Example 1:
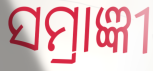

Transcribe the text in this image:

ସମ୍ରାଜ୍ଞୀ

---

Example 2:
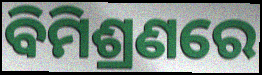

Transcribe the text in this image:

ବିମିଶ୍ରଣରେ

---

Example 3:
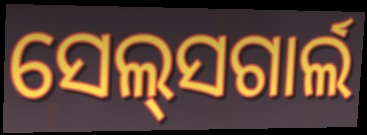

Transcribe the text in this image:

ସେଲ୍‍ସଗାର୍ଲ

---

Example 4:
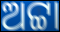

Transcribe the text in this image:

ଅଟ୍ଟା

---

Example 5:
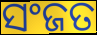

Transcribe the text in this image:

ସଂଜତ